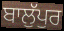
ਬਾਲੁੱਪੁਰ